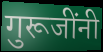
गुरूजींनी